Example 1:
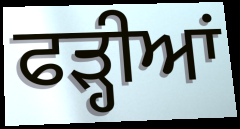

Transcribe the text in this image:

ਫੜ੍ਹੀਆਂ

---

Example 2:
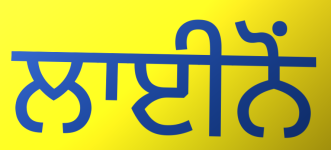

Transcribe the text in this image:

ਲਾਈਨੋਂ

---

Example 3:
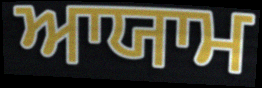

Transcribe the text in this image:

ਆਯਾਮ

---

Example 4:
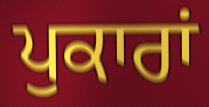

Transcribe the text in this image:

ਪੁਕਾਰਾਂ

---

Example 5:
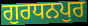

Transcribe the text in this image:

ਗੁਰਧਨਪੁਰ